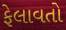
ફેલાવતો